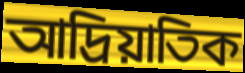
আদ্রিয়াতিক